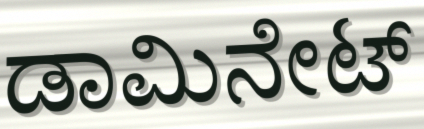
ಡಾಮಿನೇಟ್